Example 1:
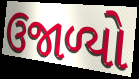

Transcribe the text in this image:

ઉજાળ્યો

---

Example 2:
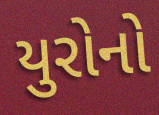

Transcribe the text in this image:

યુરોનો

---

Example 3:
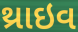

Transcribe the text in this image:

થ્રાઇવ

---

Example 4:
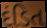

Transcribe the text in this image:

દંડિત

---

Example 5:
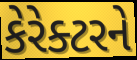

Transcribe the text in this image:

કેરેક્ટરને